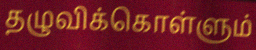
தழுவிக்கொள்ளும்